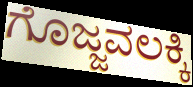
ಗೊಜ್ಜವಲಕ್ಕಿ